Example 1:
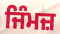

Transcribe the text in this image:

ਜਿੰਮਜ਼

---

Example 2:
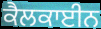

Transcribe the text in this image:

ਕੈਲਕਾਈਨ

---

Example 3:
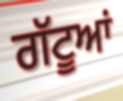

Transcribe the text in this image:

ਗੱਟੂਆਂ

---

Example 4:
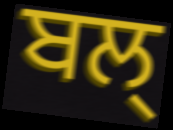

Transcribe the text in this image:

ਬਲ੍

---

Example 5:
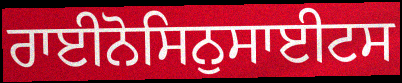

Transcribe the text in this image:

ਰਾਈਨੋਸਿਨੁਸਾਈਟਸ